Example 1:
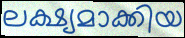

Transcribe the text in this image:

ലക്ഷ്യമാക്കിയ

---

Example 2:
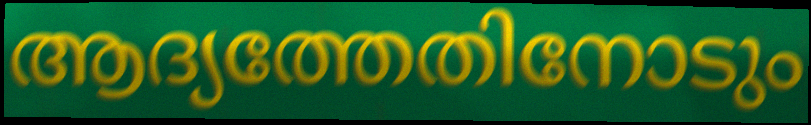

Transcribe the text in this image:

ആദ്യത്തേതിനോടും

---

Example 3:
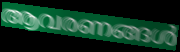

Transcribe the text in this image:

ആവരണങ്ങൾ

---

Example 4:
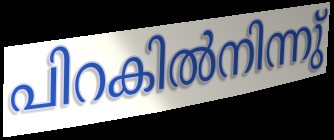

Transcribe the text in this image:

പിറകിൽനിന്നു്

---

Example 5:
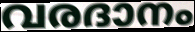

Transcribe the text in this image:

വരദാനം